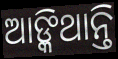
ଆଙ୍କିଥାନ୍ତି